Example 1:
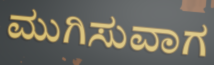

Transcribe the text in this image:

ಮುಗಿಸುವಾಗ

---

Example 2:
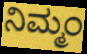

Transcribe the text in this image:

ನಿಮ್ಮಂ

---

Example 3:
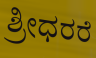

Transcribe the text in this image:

ಶ್ರೀಧರರೆ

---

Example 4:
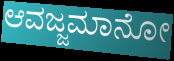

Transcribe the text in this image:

ಆವಜ್ಜಮಾನೋ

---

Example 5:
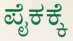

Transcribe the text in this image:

ಪೈಕಕ್ಕೆ